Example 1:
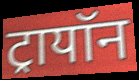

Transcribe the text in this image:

ट्रायॉन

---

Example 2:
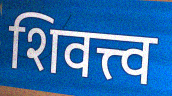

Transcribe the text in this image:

शिवत्त्व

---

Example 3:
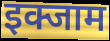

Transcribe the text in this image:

इक्जाम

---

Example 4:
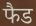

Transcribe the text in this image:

फैड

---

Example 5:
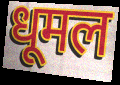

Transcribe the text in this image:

धूमल